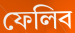
ফেলিব